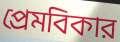
প্রেমবিকার